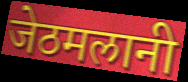
जेठमलानी